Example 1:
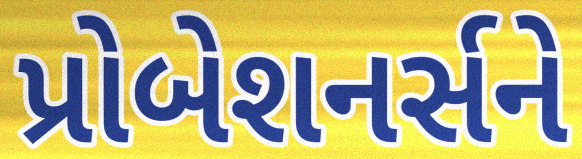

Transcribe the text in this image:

પ્રોબેશનર્સને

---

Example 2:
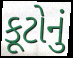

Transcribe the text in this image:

કૂટોનું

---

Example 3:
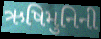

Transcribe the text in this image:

ઋષિમુનિની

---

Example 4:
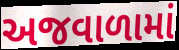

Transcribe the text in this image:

અજવાળામાં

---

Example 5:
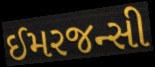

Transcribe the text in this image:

ઈમરજન્સી